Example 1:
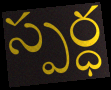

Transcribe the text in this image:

స్పర్ధ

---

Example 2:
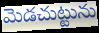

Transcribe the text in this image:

మెడచుట్టును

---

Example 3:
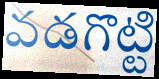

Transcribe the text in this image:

వడగొట్టి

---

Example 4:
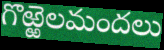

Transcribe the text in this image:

గొఱ్ఱెలమందలు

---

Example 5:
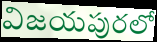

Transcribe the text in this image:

విజయపురలో